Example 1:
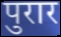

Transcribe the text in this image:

पुरार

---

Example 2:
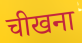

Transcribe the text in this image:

चीखना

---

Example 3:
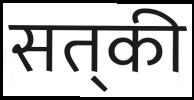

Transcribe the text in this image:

सत्‌की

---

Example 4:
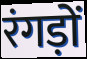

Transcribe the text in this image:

रंगड़ों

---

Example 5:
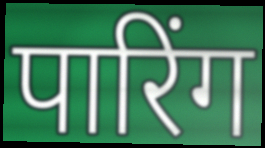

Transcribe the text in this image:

पारिंग